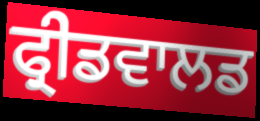
ਫ੍ਰੀਡਵਾਲਡ